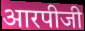
आरपीजी